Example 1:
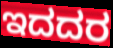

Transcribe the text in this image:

ಇದದರ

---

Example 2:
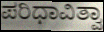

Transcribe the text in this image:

ಪರಿಧಾವಿತ್ವಾ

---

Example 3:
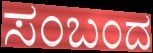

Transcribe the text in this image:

ಸಂಬಂದ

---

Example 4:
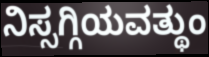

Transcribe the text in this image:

ನಿಸ್ಸಗ್ಗಿಯವತ್ಥುಂ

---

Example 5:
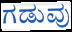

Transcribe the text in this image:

ಗಡುವು